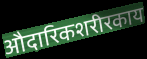
औदारिकशरीरकाय